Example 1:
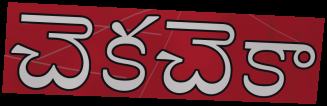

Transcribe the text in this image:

చెకచెకా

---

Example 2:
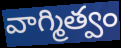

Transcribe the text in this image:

వాగ్మిత్వం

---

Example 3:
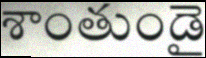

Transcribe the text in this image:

శాంతుండై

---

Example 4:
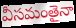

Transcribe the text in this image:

వీసమంతైనా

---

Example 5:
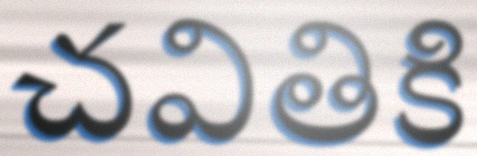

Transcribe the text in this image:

చవితికి